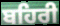
ਬਹਿਰੀ